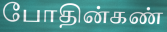
போதின்கண்